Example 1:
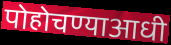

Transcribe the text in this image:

पोहोचण्याआधी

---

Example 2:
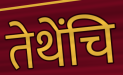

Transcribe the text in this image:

तेथेंचि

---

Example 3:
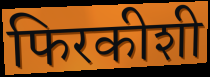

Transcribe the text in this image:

फिरकीशी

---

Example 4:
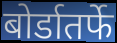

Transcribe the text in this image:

बोर्डातर्फे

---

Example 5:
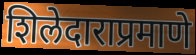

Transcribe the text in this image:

शिलेदाराप्रमाणे